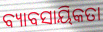
ବ୍ୟାବସାୟିକତା